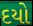
દયો